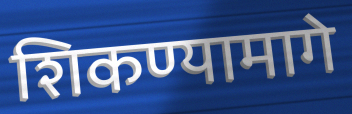
शिकण्यामागे